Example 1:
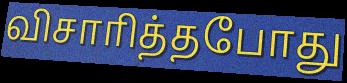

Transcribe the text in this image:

விசாரித்தபோது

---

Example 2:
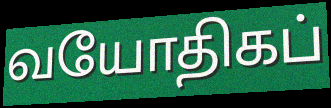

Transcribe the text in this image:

வயோதிகப்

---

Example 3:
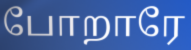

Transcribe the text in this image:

போறாரே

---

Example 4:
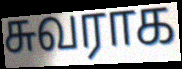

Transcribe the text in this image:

சுவராக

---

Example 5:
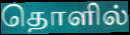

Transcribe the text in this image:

தொளில்